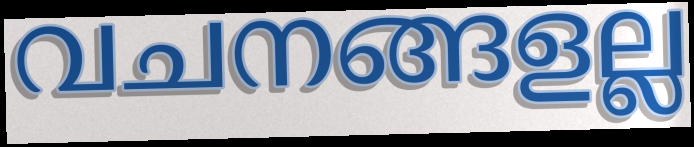
വചനങ്ങളല്ല